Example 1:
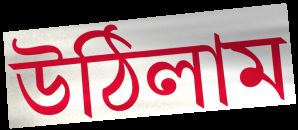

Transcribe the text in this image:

উঠিলাম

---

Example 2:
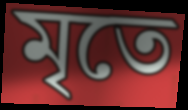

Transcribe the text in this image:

মৃতে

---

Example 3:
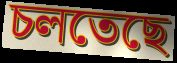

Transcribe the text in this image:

চলতেছে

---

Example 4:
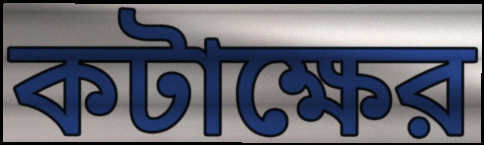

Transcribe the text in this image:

কটাক্ষের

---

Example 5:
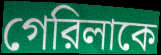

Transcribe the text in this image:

গেরিলাকে